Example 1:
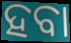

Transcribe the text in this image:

ହବା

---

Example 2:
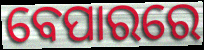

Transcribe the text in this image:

ବେପାରରେ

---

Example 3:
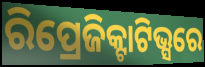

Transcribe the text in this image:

ରିପ୍ରେଜିକ୍ଟାଟିଭ୍ସରେ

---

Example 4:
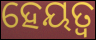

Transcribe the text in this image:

ହେୟତ୍ୱ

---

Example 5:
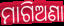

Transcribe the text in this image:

ମାଗିଅଣା